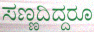
ಸಣ್ಣದಿದ್ದರೂ